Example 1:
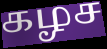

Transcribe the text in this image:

கழச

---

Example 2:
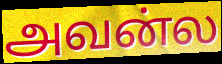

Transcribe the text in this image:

அவன்ல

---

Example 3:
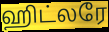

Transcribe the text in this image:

ஹிட்லரே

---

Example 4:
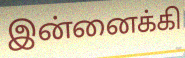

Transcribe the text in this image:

இன்னைக்கி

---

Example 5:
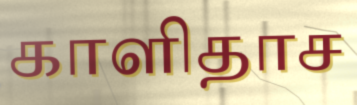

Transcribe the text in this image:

காளிதாச